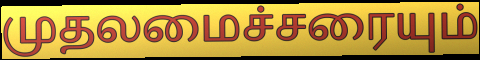
முதலமைச்சரையும்